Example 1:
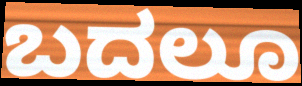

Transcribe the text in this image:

ಬದಲೂ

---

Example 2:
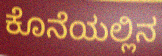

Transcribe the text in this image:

ಕೊನೆಯಲ್ಲಿನ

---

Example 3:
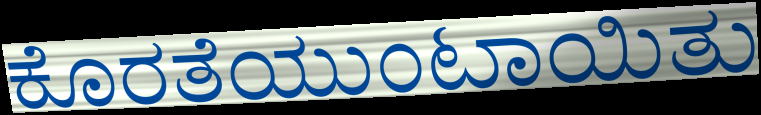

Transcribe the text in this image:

ಕೊರತೆಯುಂಟಾಯಿತು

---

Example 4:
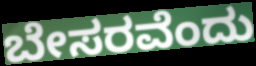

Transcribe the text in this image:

ಬೇಸರವೆಂದು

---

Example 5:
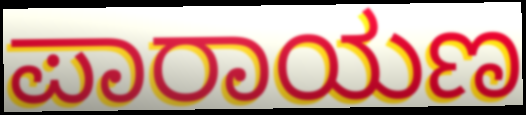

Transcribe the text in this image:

ಪಾರಾಯಣ